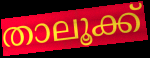
താലൂക്ക്